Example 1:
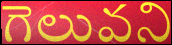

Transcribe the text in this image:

గెలువని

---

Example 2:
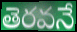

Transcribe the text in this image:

తెరవనే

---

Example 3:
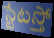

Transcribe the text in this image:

స్టేటస్తో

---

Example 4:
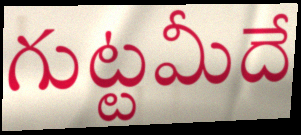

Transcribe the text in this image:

గుట్టమీదే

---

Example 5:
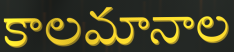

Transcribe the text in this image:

కాలమానాల